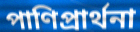
পাণিপ্রার্থনা